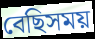
বেছিসময়